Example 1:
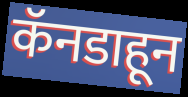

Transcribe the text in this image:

कॅनडाहून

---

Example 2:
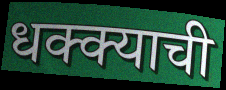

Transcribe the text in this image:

धक्क्याची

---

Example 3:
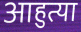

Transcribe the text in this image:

आहुत्या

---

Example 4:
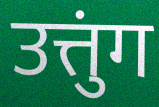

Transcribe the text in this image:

उत्तुंग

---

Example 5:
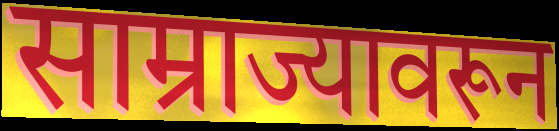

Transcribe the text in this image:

साम्राज्यावरून